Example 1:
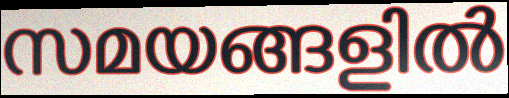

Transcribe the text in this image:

സമയങ്ങളിൽ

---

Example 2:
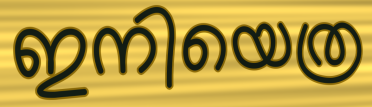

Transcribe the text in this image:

ഇനിയെത്ര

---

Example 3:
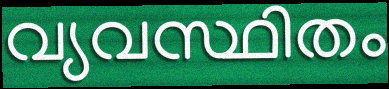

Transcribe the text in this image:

വ്യവസ്ഥിതം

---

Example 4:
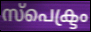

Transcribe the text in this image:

സ്പെക്ട്രം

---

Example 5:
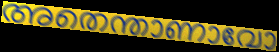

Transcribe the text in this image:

അതെന്താണാവോ